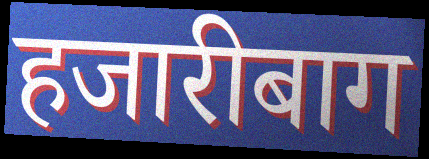
हजारीबाग